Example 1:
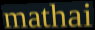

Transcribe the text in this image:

mathai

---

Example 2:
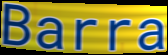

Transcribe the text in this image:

Barra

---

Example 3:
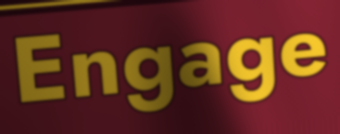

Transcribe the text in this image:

Engage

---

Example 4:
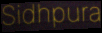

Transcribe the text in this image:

Sidhpura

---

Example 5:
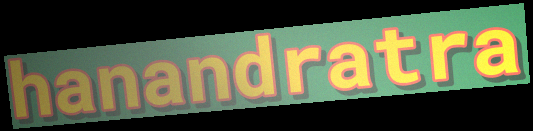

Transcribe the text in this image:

hanandratra